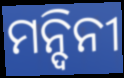
ମନ୍ଦିନୀ